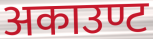
अकाउण्ट